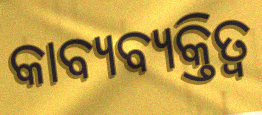
କାବ୍ୟବ୍ୟକ୍ତିତ୍ୱ